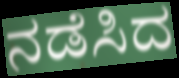
ನಡೆಸಿದ